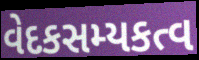
વેદકસમ્યકત્વ